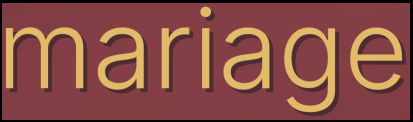
mariage